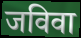
जविवा